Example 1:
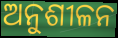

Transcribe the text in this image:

ଅନୁଶୀଳନ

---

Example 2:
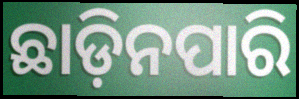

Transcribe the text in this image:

ଛାଡ଼ିନପାରି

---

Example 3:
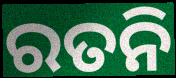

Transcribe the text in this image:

ରତନି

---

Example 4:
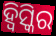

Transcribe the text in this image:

ହ୍ୱିସ୍କିର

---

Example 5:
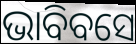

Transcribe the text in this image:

ଭାବିବସେ